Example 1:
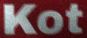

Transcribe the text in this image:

Kot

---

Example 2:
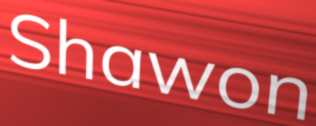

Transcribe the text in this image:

Shawon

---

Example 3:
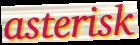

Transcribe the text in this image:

asterisk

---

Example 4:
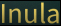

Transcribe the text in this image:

Inula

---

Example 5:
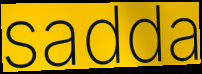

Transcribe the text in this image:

sadda